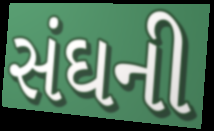
સંઘની